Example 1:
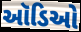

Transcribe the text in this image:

ઑડિઓ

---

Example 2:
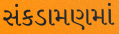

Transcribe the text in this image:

સંકડામણમાં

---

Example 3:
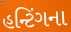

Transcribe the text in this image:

હન્ટિંગના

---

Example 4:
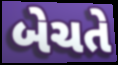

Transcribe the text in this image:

બેચતે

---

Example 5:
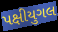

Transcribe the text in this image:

પક્ષીયુગલ